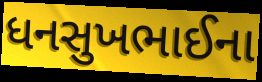
ધનસુખભાઈના